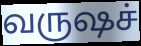
வருஷச்